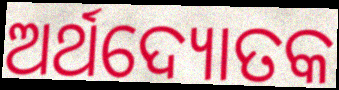
ଅର୍ଥଦ୍ୟୋତକ